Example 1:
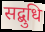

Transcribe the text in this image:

सद्बुधि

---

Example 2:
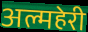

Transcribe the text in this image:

अल्महेरी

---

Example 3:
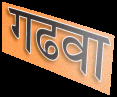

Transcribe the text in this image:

गढवा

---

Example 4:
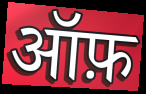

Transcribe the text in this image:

ऑफ़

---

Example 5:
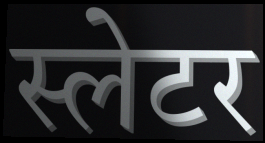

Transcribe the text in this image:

स्लेटर